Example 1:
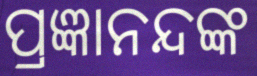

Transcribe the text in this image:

ପ୍ରଜ୍ଞାନନ୍ଦଙ୍କ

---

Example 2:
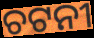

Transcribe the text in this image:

ଚଟନୀ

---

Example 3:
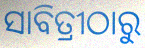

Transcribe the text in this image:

ସାବିତ୍ରୀଠାରୁ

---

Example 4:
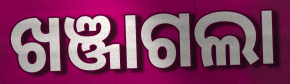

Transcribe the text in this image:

ଖଞ୍ଜାଗଲା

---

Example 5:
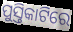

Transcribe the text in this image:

ପୁସ୍ତିକାଟିରେ